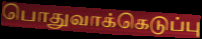
பொதுவாக்கெடுப்பு